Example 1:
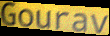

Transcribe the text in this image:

Gourav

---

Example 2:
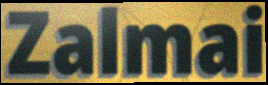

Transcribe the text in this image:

Zalmai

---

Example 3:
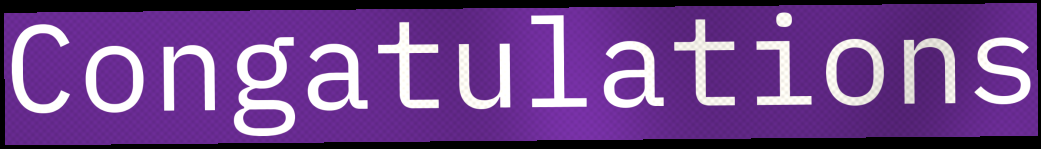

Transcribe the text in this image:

Congatulations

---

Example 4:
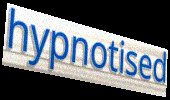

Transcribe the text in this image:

hypnotised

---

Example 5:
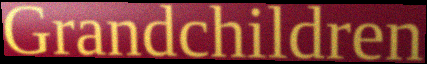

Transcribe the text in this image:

Grandchildren